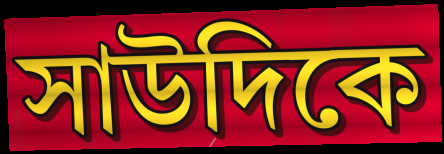
সাউদিকে